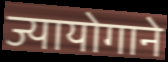
ज्यायोगाने